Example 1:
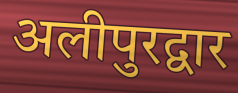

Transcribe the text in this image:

अलीपुरद्वार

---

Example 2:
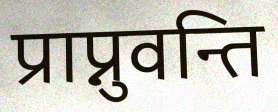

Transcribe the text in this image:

प्राप्नुवन्ति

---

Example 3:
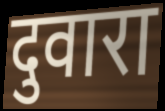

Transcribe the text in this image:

दुवारा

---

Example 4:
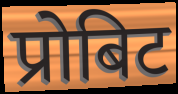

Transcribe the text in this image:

प्रोबिट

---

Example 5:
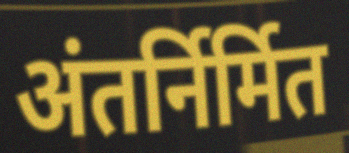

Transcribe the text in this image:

अंतर्निर्मित